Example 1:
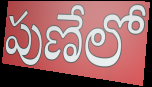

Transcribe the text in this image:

పుణేలో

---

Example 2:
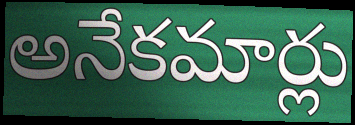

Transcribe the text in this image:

అనేకమార్లు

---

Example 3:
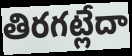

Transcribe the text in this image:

తిరగట్లేదా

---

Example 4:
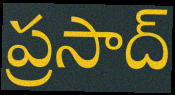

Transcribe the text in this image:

ప్రసాద్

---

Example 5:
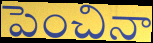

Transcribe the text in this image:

పెంచినా